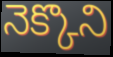
నెక్కొని